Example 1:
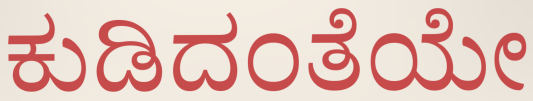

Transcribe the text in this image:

ಕುಡಿದಂತೆಯೇ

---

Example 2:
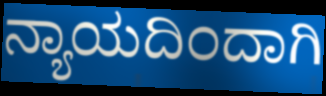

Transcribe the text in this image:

ನ್ಯಾಯದಿಂದಾಗಿ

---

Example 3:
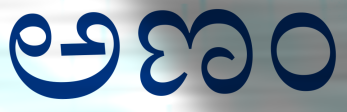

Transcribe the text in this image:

ಅಣಂ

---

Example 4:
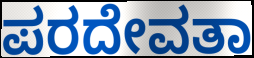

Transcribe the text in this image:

ಪರದೇವತಾ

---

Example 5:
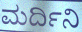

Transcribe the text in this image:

ಮರ್ದಿನಿ